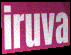
iruva